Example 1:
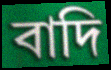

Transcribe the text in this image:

বাদি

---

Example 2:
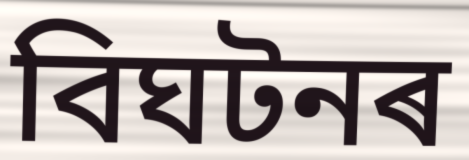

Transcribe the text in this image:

বিঘটনৰ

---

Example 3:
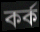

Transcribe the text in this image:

কৰ্ক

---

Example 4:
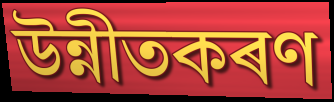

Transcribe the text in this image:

উন্নীতকৰণ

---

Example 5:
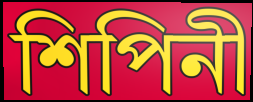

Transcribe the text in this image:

শিপিনী